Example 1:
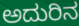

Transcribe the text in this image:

ಅದುರಿನ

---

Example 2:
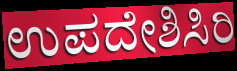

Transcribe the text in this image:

ಉಪದೇಶಿಸಿರಿ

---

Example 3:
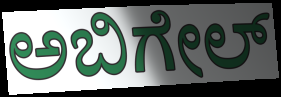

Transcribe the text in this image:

ಅಬಿಗೇಲ್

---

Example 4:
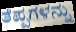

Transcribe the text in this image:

ತೆಪ್ಪಗಳನ್ನು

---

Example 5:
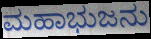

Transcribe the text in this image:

ಮಹಾಭುಜನು